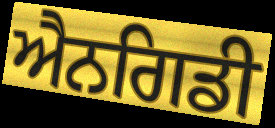
ਐਨਗਿਡੀ